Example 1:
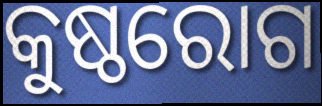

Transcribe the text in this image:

କୁଷ୍ଠରୋଗ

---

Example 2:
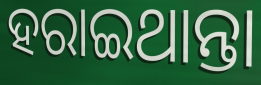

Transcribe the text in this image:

ହରାଇଥାନ୍ତା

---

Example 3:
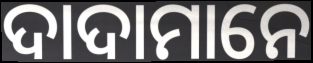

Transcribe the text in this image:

ଦାଦାମାନେ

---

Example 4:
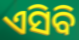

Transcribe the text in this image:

ଏସିବି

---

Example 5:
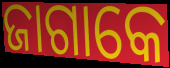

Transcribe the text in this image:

ଜାଗାକେ